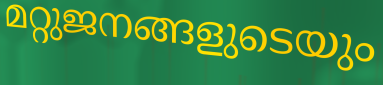
മറ്റുജനങ്ങളുടെയും